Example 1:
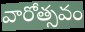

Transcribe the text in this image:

వారోత్సవం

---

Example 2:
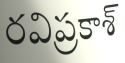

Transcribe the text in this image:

రవిప్రకాశ్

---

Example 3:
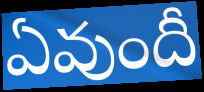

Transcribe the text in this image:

ఏవుందీ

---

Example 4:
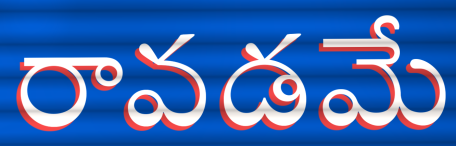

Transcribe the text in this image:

రావడమే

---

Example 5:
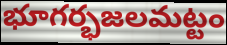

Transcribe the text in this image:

భూగర్భజలమట్టం